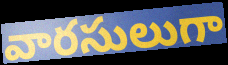
వారసులుగా